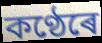
কণ্ঠেৰে